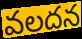
వలదన